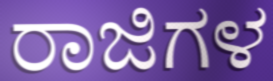
ರಾಜಿಗಳ